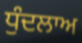
ਧੁੰਦਲਾਅ